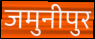
जमुनीपुर